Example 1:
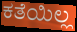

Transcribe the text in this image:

ಕತೆಯಿಲ್ಲ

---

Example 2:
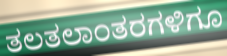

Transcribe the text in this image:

ತಲತಲಾಂತರಗಳಿಗೂ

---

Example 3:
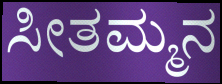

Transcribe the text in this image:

ಸೀತಮ್ಮನ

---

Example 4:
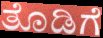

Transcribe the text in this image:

ತೊಡಿಗೆ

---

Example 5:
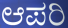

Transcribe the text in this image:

ಆಪರಿ